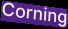
Corning